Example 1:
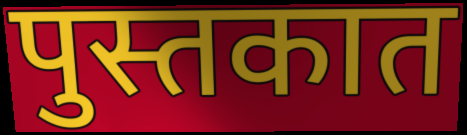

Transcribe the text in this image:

पुस्तकात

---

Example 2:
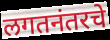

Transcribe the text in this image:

लगतनंतरचे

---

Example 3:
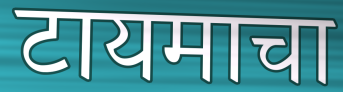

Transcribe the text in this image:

टायमाचा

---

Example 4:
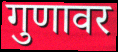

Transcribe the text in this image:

गुणावर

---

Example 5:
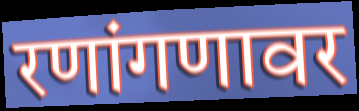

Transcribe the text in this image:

रणांगणावर